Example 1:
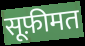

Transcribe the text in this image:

सूफ़ीमत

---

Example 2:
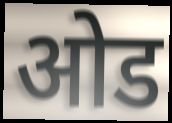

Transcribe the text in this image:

ओड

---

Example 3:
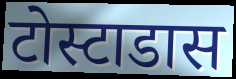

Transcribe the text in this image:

टोस्टाडास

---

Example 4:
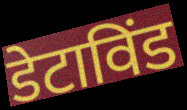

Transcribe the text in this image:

डेटाविंड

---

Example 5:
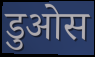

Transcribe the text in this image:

डुओस